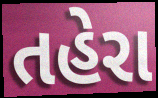
તહેરા